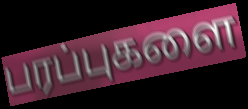
பரப்புகளை